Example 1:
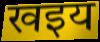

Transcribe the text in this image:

खइय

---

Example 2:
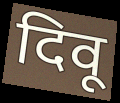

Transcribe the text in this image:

दिवू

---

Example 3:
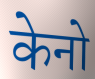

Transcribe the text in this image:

केनो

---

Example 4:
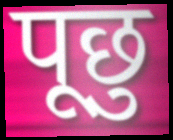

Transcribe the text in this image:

पूछु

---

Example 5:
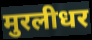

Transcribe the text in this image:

मुरलीधर